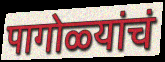
पागोळ्यांचं